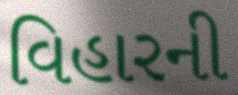
વિહારની